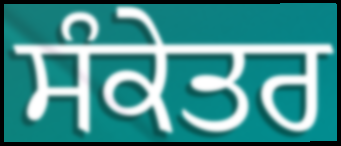
ਸੰਕੇਤਰ